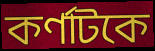
কর্ণাটকে